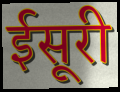
ईसूरी